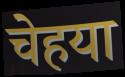
चेहया